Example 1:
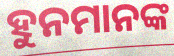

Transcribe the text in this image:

ହୁନମାନଙ୍କ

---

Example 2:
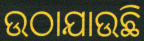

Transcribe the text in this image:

ଉଠାଯାଉଛି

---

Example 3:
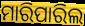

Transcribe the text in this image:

ମାରିପାରିଲ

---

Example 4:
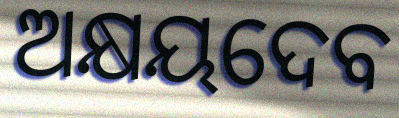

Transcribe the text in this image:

ଅକ୍ଷୟଦେବ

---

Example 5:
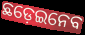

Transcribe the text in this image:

ଛଡ଼େଇନେବ